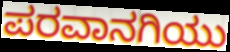
ಪರವಾನಗಿಯು